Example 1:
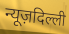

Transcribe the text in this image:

न्यूज़दिल्ली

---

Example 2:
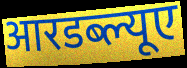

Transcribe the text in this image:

आरडब्ल्यूए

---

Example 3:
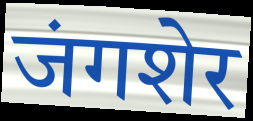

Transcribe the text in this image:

जंगशेर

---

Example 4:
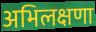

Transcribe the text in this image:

अभिलक्षणा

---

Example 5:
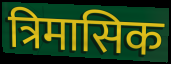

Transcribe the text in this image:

त्रिमासिक